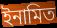
ইনামিত